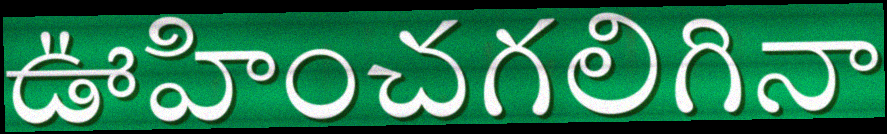
ఊహించగలిగినా